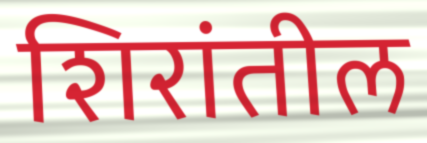
शिरांतील